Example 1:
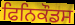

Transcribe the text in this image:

ਫਿਨਿਕੌਡਸ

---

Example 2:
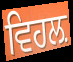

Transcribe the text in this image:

ਵਿਹਲ਼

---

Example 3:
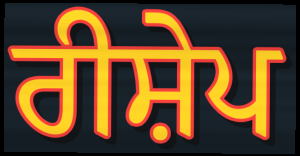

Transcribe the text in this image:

ਰੀਸ਼ੇਪ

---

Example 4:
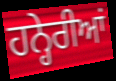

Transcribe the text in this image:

ਹਨ੍ਹੇਰੀਆਂ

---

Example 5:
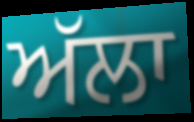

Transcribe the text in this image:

ਅੱਲਾ